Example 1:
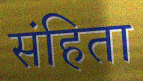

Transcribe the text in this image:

संहिता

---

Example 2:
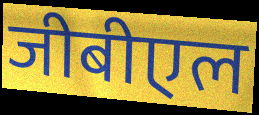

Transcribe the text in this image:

जीबीएल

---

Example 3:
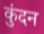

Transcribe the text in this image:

कुंदन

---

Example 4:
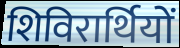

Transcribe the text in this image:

शिविरार्थियों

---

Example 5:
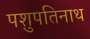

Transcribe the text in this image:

पशुपतिनाथ